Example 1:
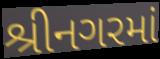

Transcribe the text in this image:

શ્રીનગરમાં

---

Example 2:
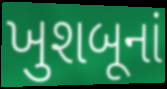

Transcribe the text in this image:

ખુશબૂનાં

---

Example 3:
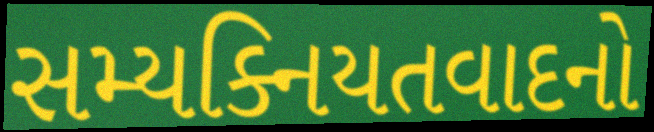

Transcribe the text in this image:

સમ્યક્નિયતવાદનો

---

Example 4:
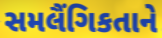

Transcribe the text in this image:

સમલૈંગિકતાને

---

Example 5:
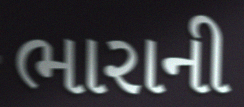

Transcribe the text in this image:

ભારાની